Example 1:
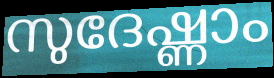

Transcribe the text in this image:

സുദേഷ്ണാം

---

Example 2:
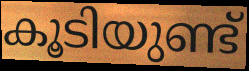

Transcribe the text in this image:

കൂടിയുണ്ട്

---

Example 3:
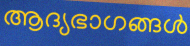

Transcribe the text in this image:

ആദ്യഭാഗങ്ങൾ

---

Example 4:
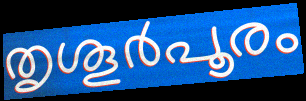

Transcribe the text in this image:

തൃശൂർപൂരം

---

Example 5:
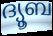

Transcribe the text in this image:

ദ്യൂബ